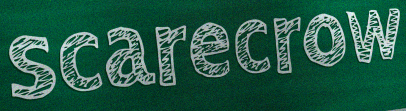
scarecrow